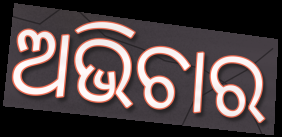
ଅଭିଚାର